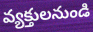
వ్యక్తులనుండి